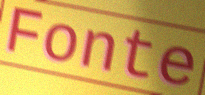
Fonte